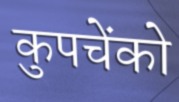
कुपचेंको